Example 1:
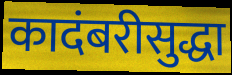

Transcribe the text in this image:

कादंबरीसुद्धा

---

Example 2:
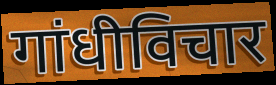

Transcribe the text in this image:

गांधीविचार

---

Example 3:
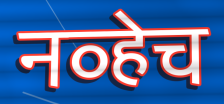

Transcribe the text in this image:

नव्हेच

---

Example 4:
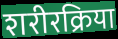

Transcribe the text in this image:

शरीरक्रिया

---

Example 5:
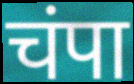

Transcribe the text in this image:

चंपा